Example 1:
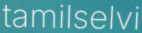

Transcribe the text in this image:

tamilselvi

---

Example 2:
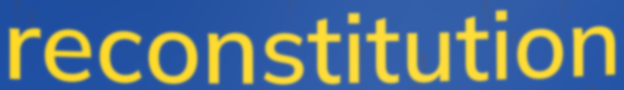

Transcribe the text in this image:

reconstitution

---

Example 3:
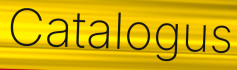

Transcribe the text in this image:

Catalogus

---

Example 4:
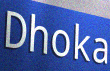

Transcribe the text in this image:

Dhoka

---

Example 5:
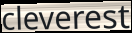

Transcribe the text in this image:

cleverest